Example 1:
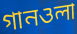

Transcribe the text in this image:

গানওলা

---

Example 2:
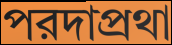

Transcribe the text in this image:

পরদাপ্রথা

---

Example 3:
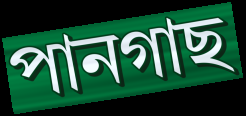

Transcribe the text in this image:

পানগাছ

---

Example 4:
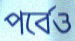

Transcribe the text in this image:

পর্বেও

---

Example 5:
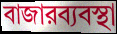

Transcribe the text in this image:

বাজারব্যবস্থা